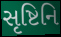
સૃષ્ટિનિ